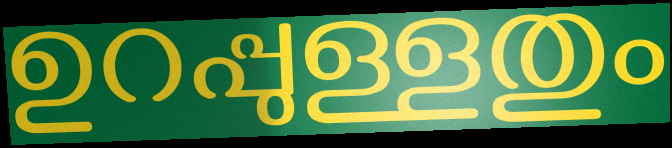
ഉറപ്പുള്ളതും